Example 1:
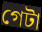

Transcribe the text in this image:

গেটা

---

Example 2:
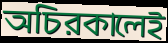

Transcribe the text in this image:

অচিরকালেই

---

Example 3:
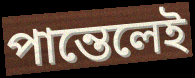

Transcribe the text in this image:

পান্তেলেই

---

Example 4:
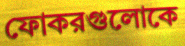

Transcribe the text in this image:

ফোকরগুলোকে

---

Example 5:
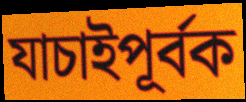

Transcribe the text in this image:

যাচাইপূর্বক